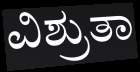
ವಿಶ್ರುತಾ